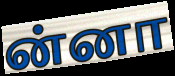
ன்னா